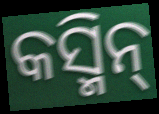
କସ୍ମିନ୍